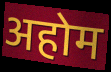
अहोम